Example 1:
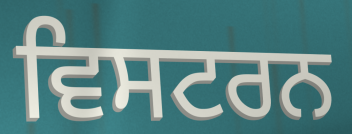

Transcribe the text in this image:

ਵਿਸਟਰਨ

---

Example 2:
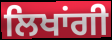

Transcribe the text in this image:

ਲਿਖਾਂਗੀ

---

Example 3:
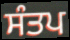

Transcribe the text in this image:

ਸੰਤਪ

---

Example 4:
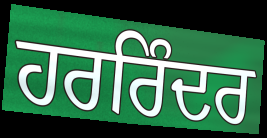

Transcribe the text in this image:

ਹਰਰਿੰਦਰ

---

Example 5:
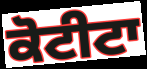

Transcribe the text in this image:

ਕੋਟੀਟਾ